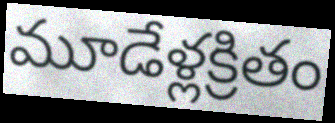
మూడేళ్లక్రితం